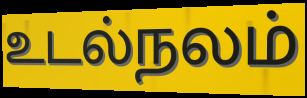
உடல்நலம்